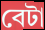
বেটা